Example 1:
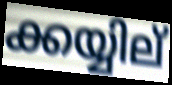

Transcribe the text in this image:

ക്കയ്യില്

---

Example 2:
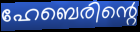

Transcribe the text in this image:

ഹേബെരിന്റെ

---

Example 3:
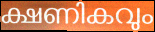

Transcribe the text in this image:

ക്ഷണികവും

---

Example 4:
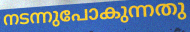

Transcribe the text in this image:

നടന്നുപോകുന്നതു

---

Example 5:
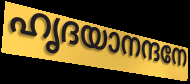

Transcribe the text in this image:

ഹൃദയാനന്ദനേ